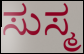
ಸುಸ್ಮ